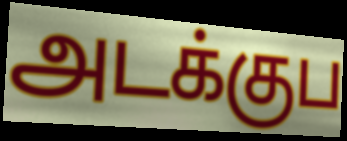
அடக்குப